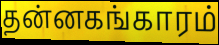
தன்னகங்காரம்